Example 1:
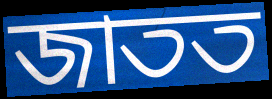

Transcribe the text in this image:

জাতত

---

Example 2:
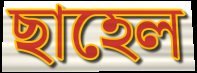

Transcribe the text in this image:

ছাহেল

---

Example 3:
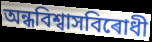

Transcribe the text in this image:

অন্ধবিশ্বাসবিৰোধী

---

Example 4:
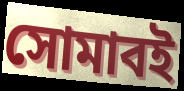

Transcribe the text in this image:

সোমাবই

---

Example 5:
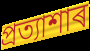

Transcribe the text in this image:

প্ৰত্যাশাৰ